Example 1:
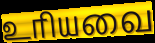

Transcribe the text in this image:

உரியவை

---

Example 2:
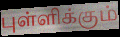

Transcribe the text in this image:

புள்ளிக்கும்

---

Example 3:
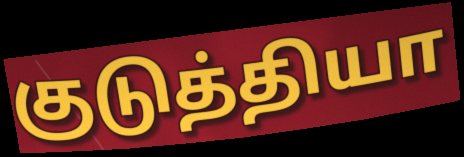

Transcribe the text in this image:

குடுத்தியா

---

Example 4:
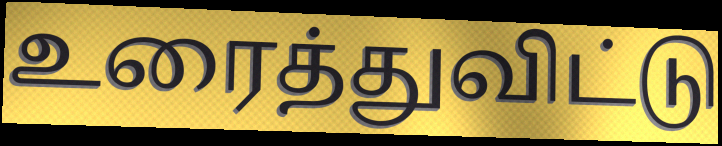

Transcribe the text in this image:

உரைத்துவிட்டு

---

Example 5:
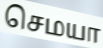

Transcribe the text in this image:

செமயா